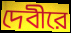
দেবীরে